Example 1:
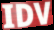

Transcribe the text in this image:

IDV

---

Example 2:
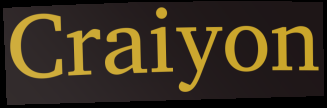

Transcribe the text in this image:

Craiyon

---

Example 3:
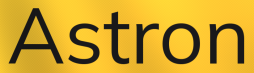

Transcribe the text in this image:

Astron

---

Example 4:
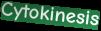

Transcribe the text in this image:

Cytokinesis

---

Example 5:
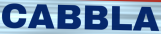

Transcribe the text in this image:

CABBLA